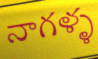
నాగళ్ళ